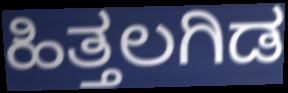
ಹಿತ್ತಲಗಿಡ